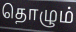
தொழும்